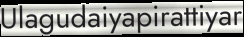
Ulagudaiyapirattiyar